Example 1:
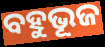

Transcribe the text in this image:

ବହୁଭୂଜ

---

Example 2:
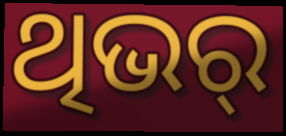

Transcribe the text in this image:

ଥିଭର୍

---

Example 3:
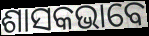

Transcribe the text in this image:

ଶାସକଭାବେ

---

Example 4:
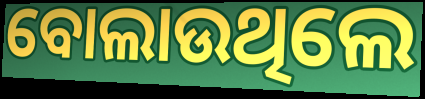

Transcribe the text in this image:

ବୋଲାଉଥିଲେ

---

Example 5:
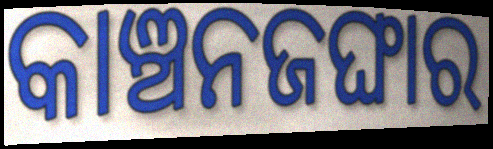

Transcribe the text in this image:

କାଞ୍ଚନଜଙ୍ଘାର